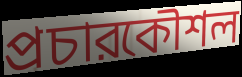
প্রচারকৌশল